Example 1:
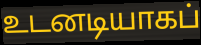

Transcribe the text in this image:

உடனடியாகப்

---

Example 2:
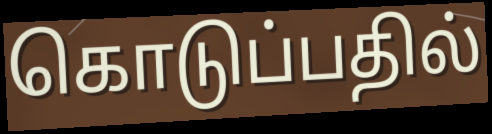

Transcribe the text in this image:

கொடுப்பதில்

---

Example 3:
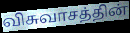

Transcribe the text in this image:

விசுவாசத்தின்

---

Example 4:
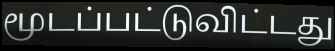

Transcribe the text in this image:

மூடப்பட்டுவிட்டது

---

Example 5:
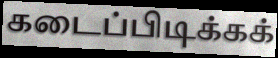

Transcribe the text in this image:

கடைப்பிடிக்கக்